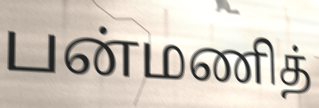
பன்மணித்